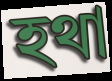
হথা